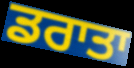
ਡਰਾਤਾ